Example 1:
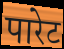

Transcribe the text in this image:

पारेट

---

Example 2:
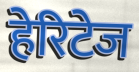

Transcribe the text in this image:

हेरिटेज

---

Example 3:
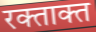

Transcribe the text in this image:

रक्ताक्त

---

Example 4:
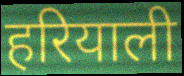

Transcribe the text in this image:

हरियाली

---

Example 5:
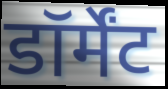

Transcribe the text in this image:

डॉर्मेंट